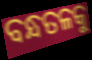
ବନ୍ଧତଳକୁ